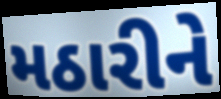
મઠારીને